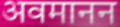
अवमानन